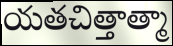
యతచిత్తాత్మా